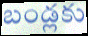
బండ్లకు